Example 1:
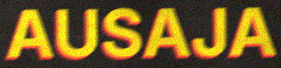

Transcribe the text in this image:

AUSAJA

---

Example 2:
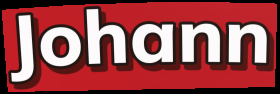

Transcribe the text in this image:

Johann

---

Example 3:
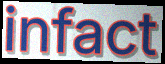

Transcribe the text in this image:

infact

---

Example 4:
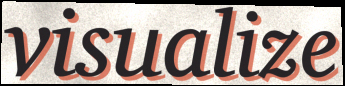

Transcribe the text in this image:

visualize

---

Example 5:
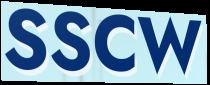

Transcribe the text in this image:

SSCW